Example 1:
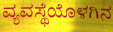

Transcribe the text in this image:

ವ್ಯವಸ್ಥೆಯೊಳಗಿನ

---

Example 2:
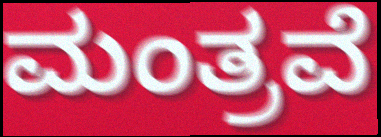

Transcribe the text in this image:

ಮಂತ್ರವೆ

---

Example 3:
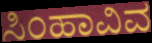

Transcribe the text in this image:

ಸಿಂಹಾವಿವ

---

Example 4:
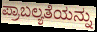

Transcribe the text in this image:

ಪ್ರಾಬಲ್ಯತೆಯನ್ನು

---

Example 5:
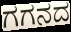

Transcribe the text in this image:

ಗಗನದ